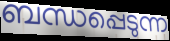
ബന്ധപ്പെടുന്ന